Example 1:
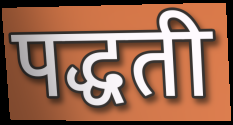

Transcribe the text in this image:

पद्धती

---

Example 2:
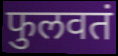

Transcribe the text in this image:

फुलवतं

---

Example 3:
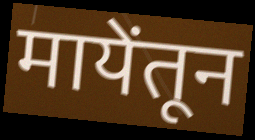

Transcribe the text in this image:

मायेंतून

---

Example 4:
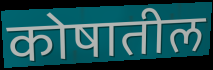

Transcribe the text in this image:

कोषातील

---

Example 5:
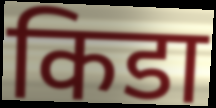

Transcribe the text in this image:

किडा